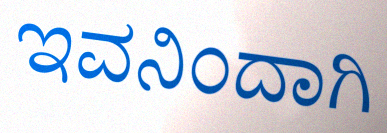
ಇವನಿಂದಾಗಿ